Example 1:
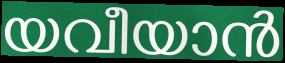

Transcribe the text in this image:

യവീയാൻ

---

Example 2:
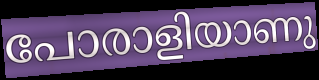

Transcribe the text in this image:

പോരാളിയാണു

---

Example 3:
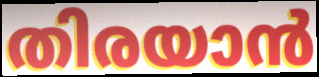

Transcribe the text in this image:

തിരയാൻ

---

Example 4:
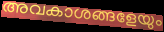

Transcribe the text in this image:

അവകാശങ്ങളേയും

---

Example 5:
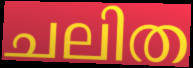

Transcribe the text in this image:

ചലിത